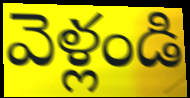
వెళ్లండి